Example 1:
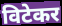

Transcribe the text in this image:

विटेकर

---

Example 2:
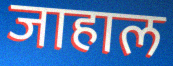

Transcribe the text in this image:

जाहाल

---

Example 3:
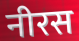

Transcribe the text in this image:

नीरस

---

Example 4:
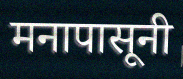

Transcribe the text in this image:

मनापासूनी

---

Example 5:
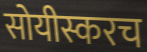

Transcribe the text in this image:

सोयीस्करच